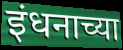
इंधनाच्या